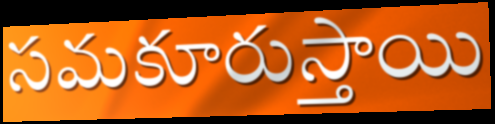
సమకూరుస్తాయి